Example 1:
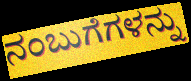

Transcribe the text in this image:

ನಂಬುಗೆಗಳನ್ನು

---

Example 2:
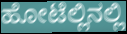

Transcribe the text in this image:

ಹೋಟೆಲ್ಲಿನಲ್ಲಿ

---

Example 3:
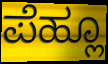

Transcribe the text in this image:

ಪೆಹ್ಲೂ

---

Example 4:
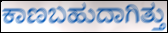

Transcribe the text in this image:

ಕಾಣಬಹುದಾಗಿತ್ತು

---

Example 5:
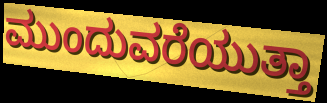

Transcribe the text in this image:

ಮುಂದುವರೆಯುತ್ತಾ